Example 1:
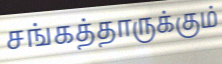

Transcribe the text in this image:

சங்கத்தாருக்கும்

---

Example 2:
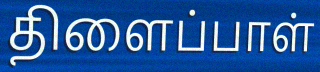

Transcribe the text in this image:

திளைப்பாள்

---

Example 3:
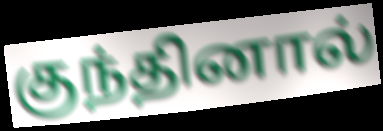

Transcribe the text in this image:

குந்தினால்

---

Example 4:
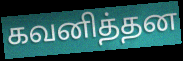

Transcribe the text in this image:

கவனித்தன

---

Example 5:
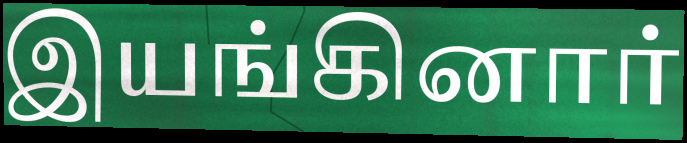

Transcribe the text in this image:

இயங்கினார்